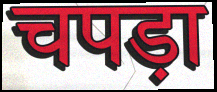
चपड़ा